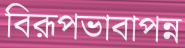
বিরূপভাবাপন্ন